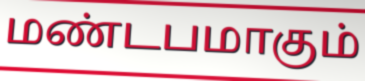
மண்டபமாகும்